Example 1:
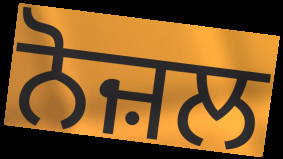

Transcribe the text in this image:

ਨੋਜ਼ਲ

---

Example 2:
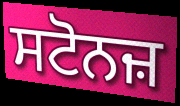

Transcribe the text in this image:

ਸਟੋਨਜ਼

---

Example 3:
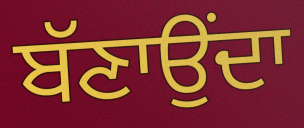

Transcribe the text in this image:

ਬੱਣਾਉਂਦਾ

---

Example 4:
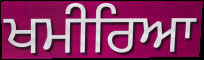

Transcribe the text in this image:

ਖਮੀਰਿਆ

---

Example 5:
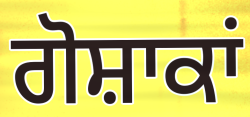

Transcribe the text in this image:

ਗੋਸ਼ਾਕਾਂ